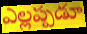
ఎల్లప్పడూ